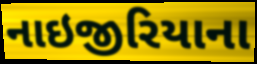
નાઇજીરિયાના